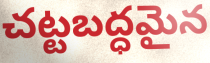
చట్టబద్ధమైన